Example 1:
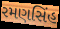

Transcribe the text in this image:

રમણસિંહ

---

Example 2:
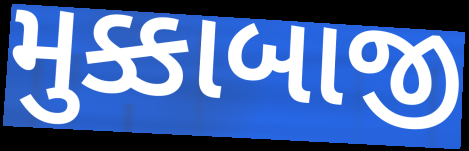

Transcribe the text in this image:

મુક્કાબાજી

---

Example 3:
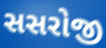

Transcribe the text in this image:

સસરોજી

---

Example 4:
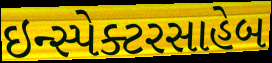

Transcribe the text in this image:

ઇન્સ્પેક્ટરસાહેબ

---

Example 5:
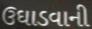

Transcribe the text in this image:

ઉઘાડવાની